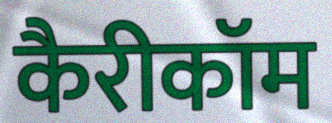
कैरीकॉम